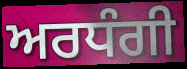
ਅਰਧੰਗੀ